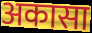
अकासा